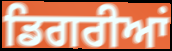
ਡਿਗਰੀਆਂ